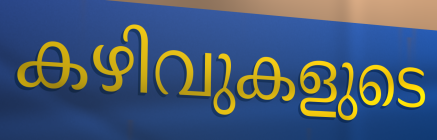
കഴിവുകളുടെ